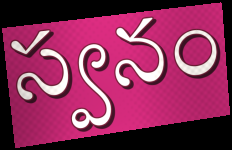
స్వనం